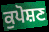
ਕੁਪੋਸ਼ਣ